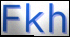
Fkh